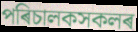
পৰিচালকসকলৰ